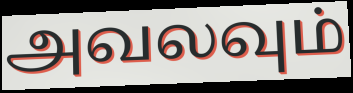
அவலவும்